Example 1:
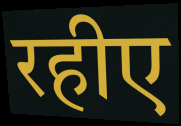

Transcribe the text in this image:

रहीए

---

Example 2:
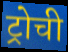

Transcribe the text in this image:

ट्रोची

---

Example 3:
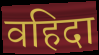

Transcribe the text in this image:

वहिदा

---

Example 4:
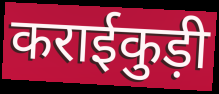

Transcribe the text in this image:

कराईकुड़ी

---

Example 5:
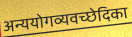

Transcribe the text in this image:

अन्ययोगव्यवच्छेदिका